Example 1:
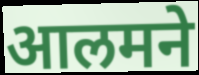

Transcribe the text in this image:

आलमने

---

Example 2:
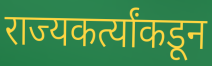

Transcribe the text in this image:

राज्यकर्त्यांकडून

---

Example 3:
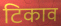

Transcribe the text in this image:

टिकाव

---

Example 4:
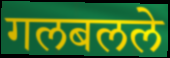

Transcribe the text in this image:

गलबलले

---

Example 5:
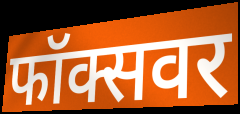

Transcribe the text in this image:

फॉक्सवर